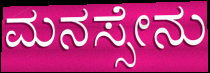
ಮನಸ್ಸೇನು